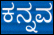
ಕನ್ನವ